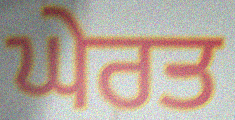
ਘੇਰਤ